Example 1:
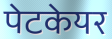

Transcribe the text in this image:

पेटकेयर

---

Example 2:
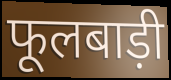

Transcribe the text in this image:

फूलबाड़ी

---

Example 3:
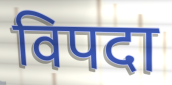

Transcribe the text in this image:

विपदा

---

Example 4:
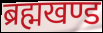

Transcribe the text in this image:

ब्रह्मखण्ड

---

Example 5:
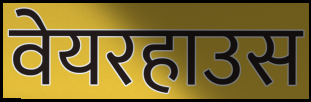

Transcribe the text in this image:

वेयरहाउस